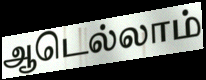
ஆடெல்லாம்